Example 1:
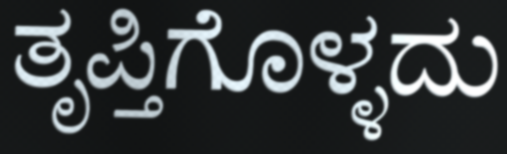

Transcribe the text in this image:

ತೃಪ್ತಿಗೊಳ್ಳದು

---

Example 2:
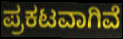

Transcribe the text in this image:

ಪ್ರಕಟವಾಗಿವೆ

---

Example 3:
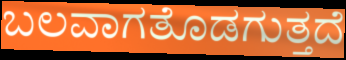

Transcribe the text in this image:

ಬಲವಾಗತೊಡಗುತ್ತದೆ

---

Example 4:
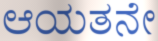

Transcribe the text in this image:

ಆಯತನೇ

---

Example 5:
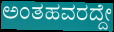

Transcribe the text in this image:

ಅಂತಹವರದ್ದೇ